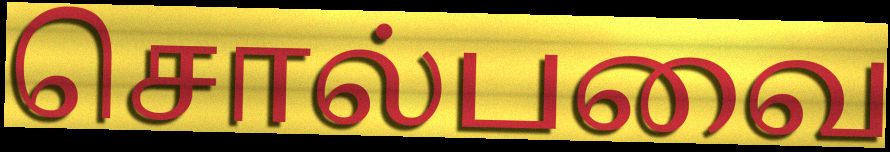
சொல்பவை